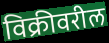
विक्रीवरील